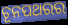
ଚୂନପଥରର